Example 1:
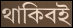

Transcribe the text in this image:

থাকিবই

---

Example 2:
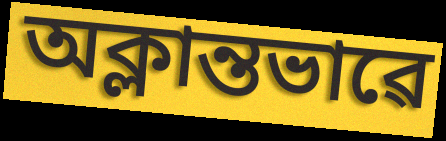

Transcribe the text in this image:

অক্লান্তভাৱে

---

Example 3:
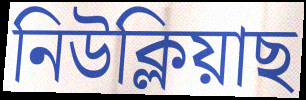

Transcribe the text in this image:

নিউক্লিয়াছ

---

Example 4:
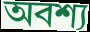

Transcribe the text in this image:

অবশ্য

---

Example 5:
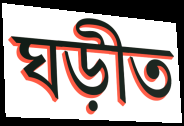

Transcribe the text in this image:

ঘড়ীত